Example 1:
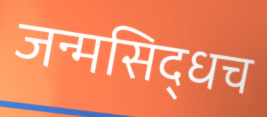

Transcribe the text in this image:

जन्मसिद्धच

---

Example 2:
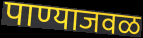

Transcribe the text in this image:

पाण्याजवळ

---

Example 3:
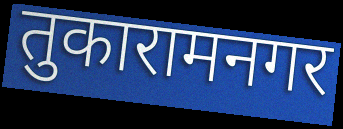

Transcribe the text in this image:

तुकारामनगर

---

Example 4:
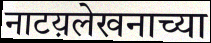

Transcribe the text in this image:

नाटय़लेखनाच्या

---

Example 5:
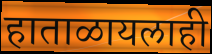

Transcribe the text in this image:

हाताळायलाही